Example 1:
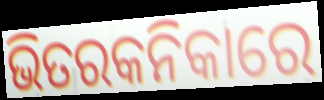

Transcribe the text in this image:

ଭିତରକନିକାରେ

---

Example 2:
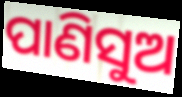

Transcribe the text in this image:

ପାଣିସୁଅ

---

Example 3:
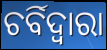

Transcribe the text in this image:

ଚର୍ବିଦ୍ଵାରା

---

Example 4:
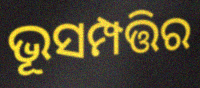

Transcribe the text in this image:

ଭୂସମ୍ପତ୍ତିର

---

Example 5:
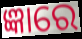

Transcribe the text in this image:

ଜ୍ଞାରେ